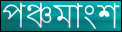
পঞ্চমাংশ